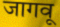
जागवू